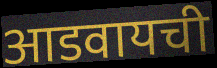
आडवायची